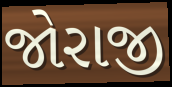
જોરાજી